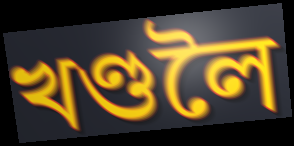
খণ্ডলৈ